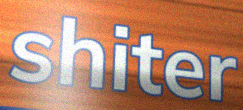
shiter